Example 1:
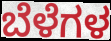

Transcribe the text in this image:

ಬೆಳೆಗಳ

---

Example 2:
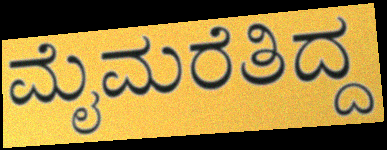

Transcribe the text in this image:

ಮೈಮರೆತಿದ್ದ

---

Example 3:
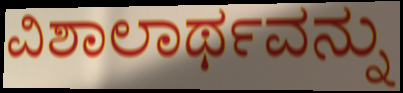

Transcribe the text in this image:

ವಿಶಾಲಾರ್ಥವನ್ನು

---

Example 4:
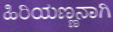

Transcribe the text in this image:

ಹಿರಿಯಣ್ಣನಾಗಿ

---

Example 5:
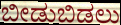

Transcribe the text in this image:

ಬೀಡುಬಿಡಲು